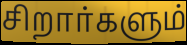
சிறார்களும்